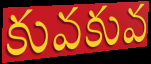
కువకువ